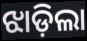
ଝାଡ଼ିଲା